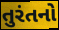
તુરંતનો